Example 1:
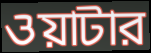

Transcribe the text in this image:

ওয়াটার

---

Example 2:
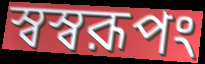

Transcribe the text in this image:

স্বস্বরূপং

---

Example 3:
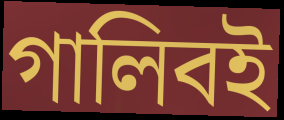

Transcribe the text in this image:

গালিবই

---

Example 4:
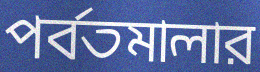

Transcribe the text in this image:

পর্বতমালার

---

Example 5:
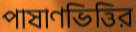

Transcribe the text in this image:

পাষাণভিত্তির